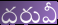
దరువీ